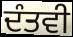
ਦੰਤਵੀ